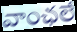
వాంఛలే